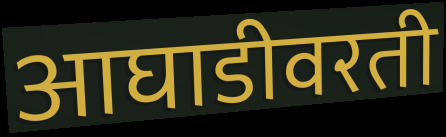
आघाडीवरती